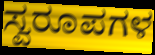
ಸ್ವರೂಪಗಳ